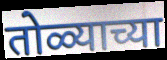
तोळ्याच्या